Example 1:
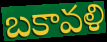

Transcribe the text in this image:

బకావళి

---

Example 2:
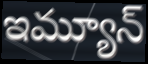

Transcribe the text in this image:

ఇమ్యూన్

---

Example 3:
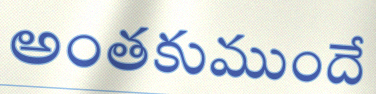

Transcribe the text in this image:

అంతకుముందే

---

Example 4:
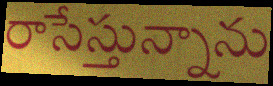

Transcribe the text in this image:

రాసేస్తున్నాను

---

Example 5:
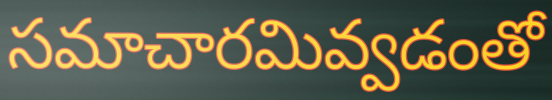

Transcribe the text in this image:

సమాచారమివ్వడంతో